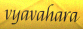
vyavahara